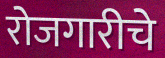
रोजगारीचे